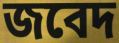
জবেদ